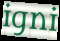
igni